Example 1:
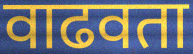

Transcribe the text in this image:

वाढवता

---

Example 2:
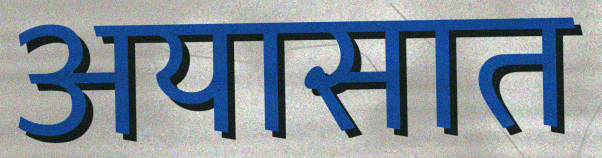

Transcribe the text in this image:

अयासात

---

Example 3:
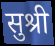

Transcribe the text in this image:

सुश्री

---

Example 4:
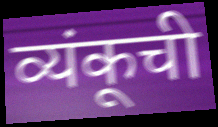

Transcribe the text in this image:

व्यंकूची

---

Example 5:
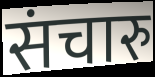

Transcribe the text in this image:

संचारु